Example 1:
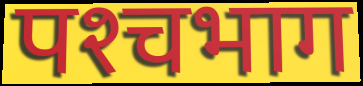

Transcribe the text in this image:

पश्चभाग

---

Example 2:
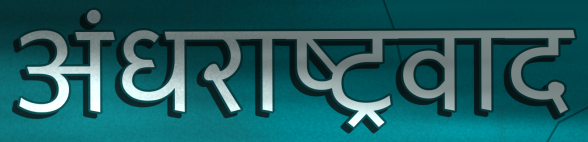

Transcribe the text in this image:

अंधराष्ट्रवाद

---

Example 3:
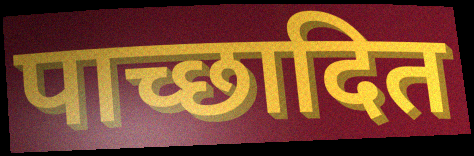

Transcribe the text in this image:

पाच्छादित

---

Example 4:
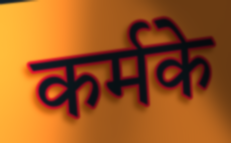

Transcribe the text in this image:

कर्मके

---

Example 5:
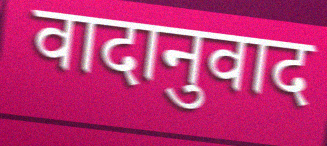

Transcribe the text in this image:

वादानुवाद